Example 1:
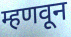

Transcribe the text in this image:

म्हणवून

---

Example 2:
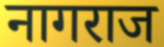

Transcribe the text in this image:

नागराज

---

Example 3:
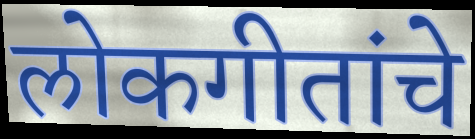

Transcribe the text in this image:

लोकगीतांचे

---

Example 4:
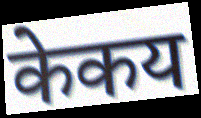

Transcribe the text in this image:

केकय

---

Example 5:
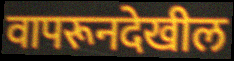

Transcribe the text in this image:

वापरूनदेखील